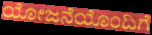
ಯೋಜನೆಯೊಂದಿಗೆ